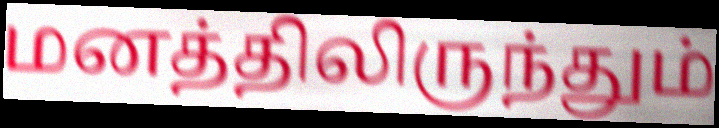
மனத்திலிருந்தும்